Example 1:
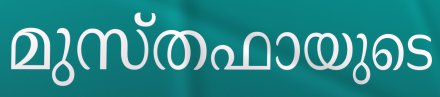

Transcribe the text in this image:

മുസ്തഫായുടെ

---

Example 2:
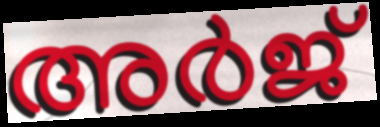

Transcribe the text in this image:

അർജ്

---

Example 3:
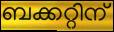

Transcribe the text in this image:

ബക്കറ്റിന്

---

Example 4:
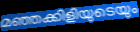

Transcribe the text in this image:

മഞ്ഞക്കിളിയുടെയും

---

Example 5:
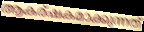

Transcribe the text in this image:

ആകര്ഷകമാക്കുന്നത്